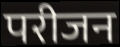
परीजन